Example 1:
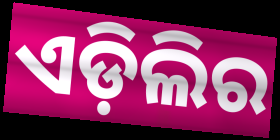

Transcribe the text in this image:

ଏଡ଼ିଲିର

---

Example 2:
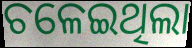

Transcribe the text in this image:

ଚଳେଇଥିଲା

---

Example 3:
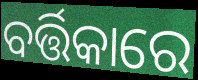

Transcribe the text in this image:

ବର୍ତ୍ତିକାରେ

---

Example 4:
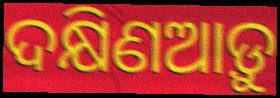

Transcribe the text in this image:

ଦକ୍ଷିଣଆଡ଼ୁ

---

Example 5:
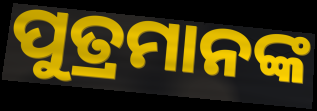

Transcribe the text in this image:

ପୁତ୍ରମାନଙ୍କ